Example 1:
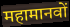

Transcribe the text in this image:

महामानवों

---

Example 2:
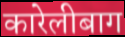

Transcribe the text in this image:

कारेलीबाग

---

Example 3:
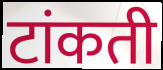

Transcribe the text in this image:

टांकती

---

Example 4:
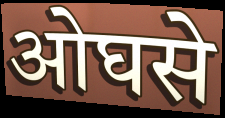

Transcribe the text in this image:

ओघसे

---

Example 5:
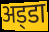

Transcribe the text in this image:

अड्‍डा